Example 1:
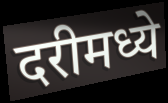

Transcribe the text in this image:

दरीमध्ये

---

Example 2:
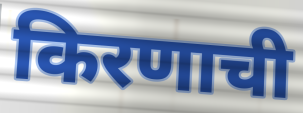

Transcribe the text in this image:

किरणाची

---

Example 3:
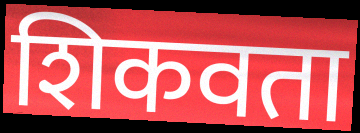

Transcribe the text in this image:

शिकवता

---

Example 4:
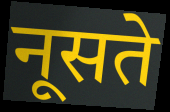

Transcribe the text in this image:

नूसते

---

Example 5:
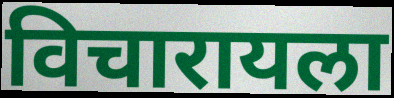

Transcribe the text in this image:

विचारायला